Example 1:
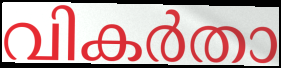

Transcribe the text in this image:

വികർതാ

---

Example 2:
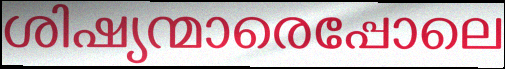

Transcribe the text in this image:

ശിഷ്യന്മാരെപ്പോലെ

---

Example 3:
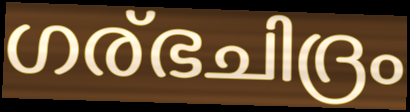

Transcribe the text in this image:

ഗര്ഭചിദ്രം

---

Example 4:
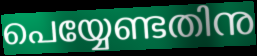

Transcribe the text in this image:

പെയ്യേണ്ടതിനു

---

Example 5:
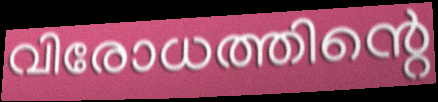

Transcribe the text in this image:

വിരോധത്തിന്റെ